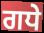
ਗਧੇ